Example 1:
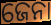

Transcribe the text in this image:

ଜେନା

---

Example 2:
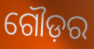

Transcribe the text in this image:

ଗୌଡ଼ର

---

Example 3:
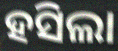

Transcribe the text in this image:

ହସିଲା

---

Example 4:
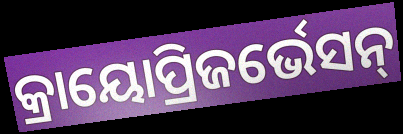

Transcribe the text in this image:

କ୍ରାୟୋପ୍ରିଜର୍ଭେସନ୍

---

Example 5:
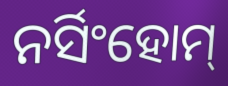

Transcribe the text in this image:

ନର୍ସିଂହୋମ୍